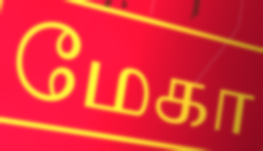
மேகா